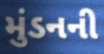
મુંડનની